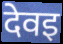
देवइ